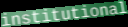
institutional